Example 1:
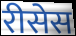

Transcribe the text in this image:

रीसेस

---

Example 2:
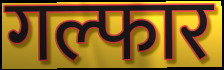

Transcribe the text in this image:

गल्फार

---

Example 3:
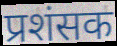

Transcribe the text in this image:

प्रशंसक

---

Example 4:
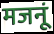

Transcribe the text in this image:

मजनूं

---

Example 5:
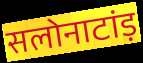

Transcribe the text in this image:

सलोनाटांड़